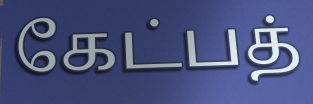
கேட்பத்